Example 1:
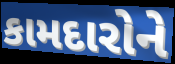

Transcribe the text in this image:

કામદારોને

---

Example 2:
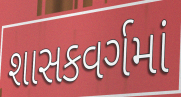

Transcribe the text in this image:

શાસકવર્ગમાં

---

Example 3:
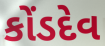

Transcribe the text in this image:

કોંડદેવ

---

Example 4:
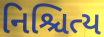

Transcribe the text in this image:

નિશ્ચિત્ય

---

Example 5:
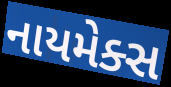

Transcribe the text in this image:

નાયમેક્સ